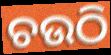
ଚଉଠି